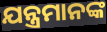
ଯନ୍ତ୍ରମାନଙ୍କ